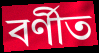
বর্ণীত